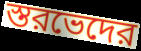
স্তরভেদের